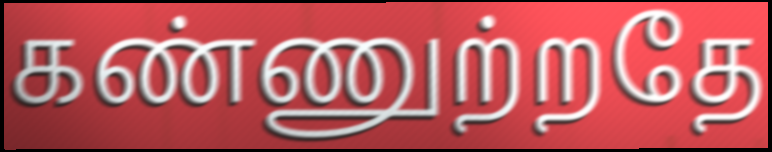
கண்ணுற்றதே